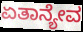
ಏತಾನ್ಯೇವ